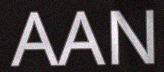
AAN